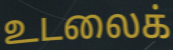
உடலைக்